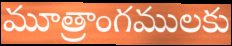
మూత్రాంగములకు